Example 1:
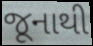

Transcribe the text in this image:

જૂનાથી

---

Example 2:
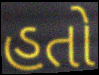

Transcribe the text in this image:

હતો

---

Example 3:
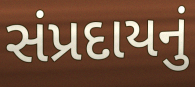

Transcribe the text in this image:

સંપ્રદાયનું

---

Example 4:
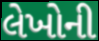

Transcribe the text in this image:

લેખોની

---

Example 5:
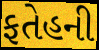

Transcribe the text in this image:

ફતેહની